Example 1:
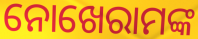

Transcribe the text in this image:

ନୋଖେରାମଙ୍କ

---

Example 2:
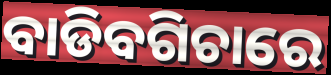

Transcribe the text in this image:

ବାଡିବଗିଚାରେ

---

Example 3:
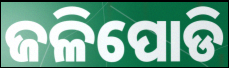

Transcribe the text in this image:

ଜଳିପୋଡି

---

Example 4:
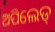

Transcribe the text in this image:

ଅପିଲେଡ୍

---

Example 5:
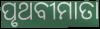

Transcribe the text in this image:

ପୃଥବୀମାତା